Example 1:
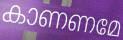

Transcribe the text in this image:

കാണണമേ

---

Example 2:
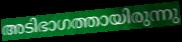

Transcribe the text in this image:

അടിഭാഗത്തായിരുന്നു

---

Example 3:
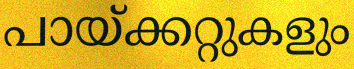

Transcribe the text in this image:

പായ്ക്കറ്റുകളും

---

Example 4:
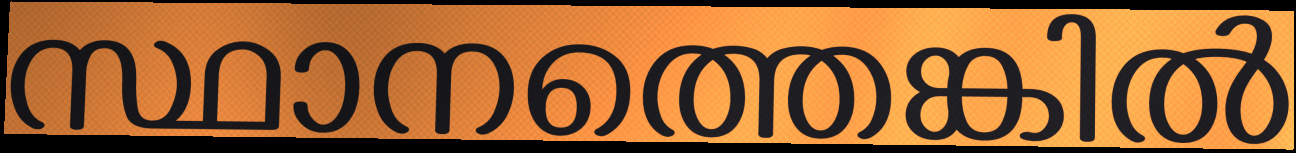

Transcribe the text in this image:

സ്ഥാനത്തെങ്കിൽ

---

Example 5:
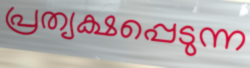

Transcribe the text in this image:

പ്രത്യക്ഷപ്പെടുന്ന